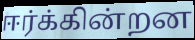
ஈர்க்கின்றன